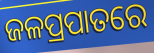
ଜଳପ୍ରପାତରେ